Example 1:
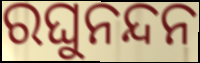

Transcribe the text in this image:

ରଘୁନନ୍ଦନ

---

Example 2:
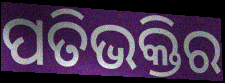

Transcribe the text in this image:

ପତିଭକ୍ତିର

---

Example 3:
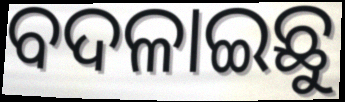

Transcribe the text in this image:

ବଦଳାଇଛୁ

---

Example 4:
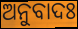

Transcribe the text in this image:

ଅନୁବାଦଃ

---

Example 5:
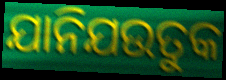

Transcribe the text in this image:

ଯାନିଯଉତୁକ